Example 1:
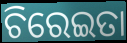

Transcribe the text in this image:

ଚିରେଇତା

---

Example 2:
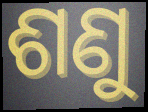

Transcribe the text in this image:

ଶଣୁ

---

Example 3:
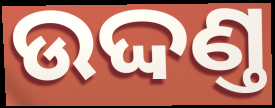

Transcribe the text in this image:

ଉଦ୍ଦଣ୍ତ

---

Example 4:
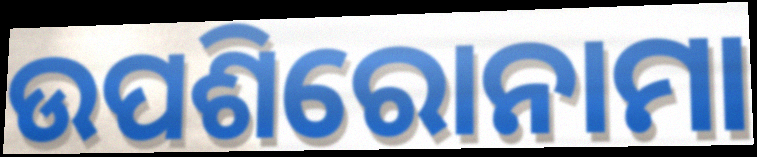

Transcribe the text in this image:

ଉପଶିରୋନାମା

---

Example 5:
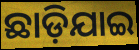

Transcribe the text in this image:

ଛାଡ଼ିଯାଇ